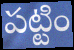
పట్టిం